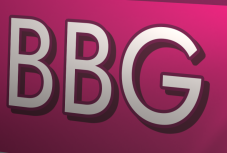
BBG